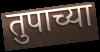
तुपाच्या